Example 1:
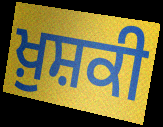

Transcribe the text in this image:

ਖ਼ੁਸ਼ਕੀ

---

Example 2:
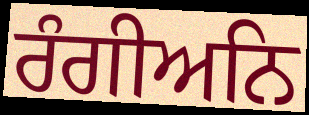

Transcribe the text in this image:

ਰੰਗੀਅਨਿ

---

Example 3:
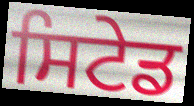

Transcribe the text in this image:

ਸਿਟੇਡ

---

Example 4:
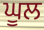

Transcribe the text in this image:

ਘੂਲ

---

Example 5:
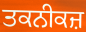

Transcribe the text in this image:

ਤਕਨੀਕਜ਼